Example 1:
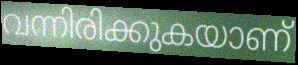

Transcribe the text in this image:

വന്നിരിക്കുകയാണ്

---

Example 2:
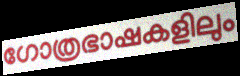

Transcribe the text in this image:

ഗോത്രഭാഷകളിലും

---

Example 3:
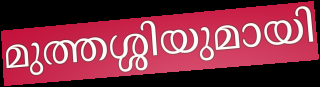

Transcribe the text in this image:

മുത്തശ്ശിയുമായി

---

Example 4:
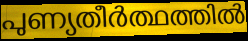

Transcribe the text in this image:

പുണ്യതീർത്ഥത്തിൽ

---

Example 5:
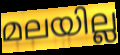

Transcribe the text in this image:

മലയില്ല